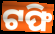
ଟଫି